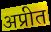
अप्रीत